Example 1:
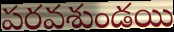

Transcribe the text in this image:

పరవశుండయి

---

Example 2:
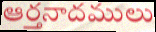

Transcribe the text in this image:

ఆర్తనాదములు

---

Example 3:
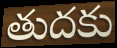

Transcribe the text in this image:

తుదకు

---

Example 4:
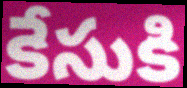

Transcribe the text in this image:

కేసుకి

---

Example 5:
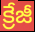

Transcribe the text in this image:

క్రేజీ